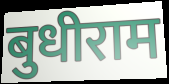
बुधीराम